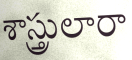
శాస్త్రులారా